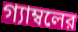
গ্যাম্বলের